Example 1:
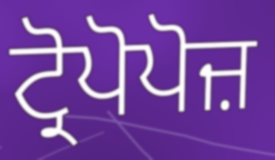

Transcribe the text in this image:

ਟ੍ਰੋਪੋਪੋਜ਼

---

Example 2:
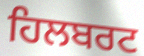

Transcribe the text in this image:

ਹਿਲਬਰਟ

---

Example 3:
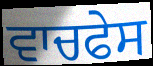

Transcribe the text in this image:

ਵਾਚਫੇਸ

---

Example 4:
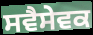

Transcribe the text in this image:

ਸਵੈਸੇਵਕ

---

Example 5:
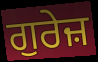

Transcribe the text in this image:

ਗੁਰੇਜ਼